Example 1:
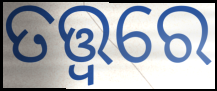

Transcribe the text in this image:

ତତ୍ତ୍ୱରେ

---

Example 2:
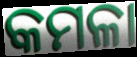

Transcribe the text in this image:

କମଳା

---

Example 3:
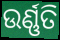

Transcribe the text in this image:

ଉର୍ଣ୍ଣତି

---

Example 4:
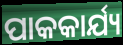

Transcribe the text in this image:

ପାକକାର୍ଯ୍ୟ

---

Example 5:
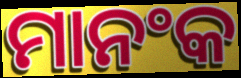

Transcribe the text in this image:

ମାନଂକ